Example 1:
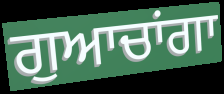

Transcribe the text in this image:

ਗੁਆਚਾਂਗਾ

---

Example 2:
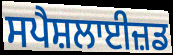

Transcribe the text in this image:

ਸਪੈਸ਼ਲਾਈਜ਼ਡ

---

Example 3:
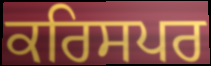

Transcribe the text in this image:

ਕਰਿਸਪਰ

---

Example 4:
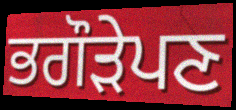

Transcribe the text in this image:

ਭਗੌੜੇਪਣ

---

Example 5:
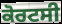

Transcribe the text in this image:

ਕੋਰਟਸੀ